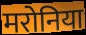
मरोनिया